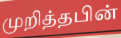
முறித்தபின்